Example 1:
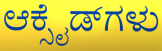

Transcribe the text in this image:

ಆಕ್ಸೈಡ್‌ಗಳು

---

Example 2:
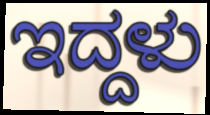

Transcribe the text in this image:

ಇದ್ದಳು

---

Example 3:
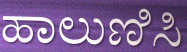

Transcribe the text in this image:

ಹಾಲುಣಿಸಿ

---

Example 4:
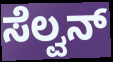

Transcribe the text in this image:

ಸೆಲ್ವನ್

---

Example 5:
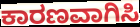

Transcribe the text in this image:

ಕಾರಣವಾಗಿಸಿ